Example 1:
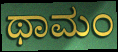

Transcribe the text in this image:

ಥಾಮಂ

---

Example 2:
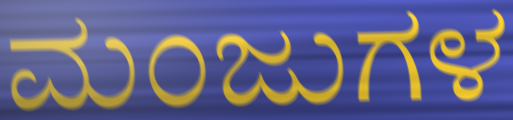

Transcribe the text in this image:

ಮಂಜುಗಳ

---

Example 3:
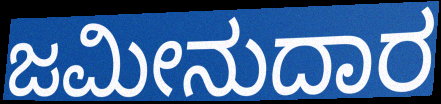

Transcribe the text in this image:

ಜಮೀನುದಾರ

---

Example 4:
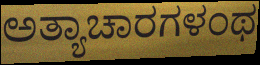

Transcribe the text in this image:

ಅತ್ಯಾಚಾರಗಳಂಥ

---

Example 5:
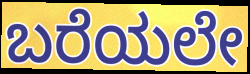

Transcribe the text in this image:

ಬರೆಯಲೇ